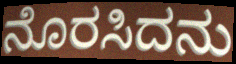
ನೊರಸಿದನು